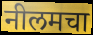
नीलमचा